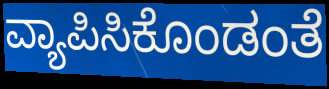
ವ್ಯಾಪಿಸಿಕೊಂಡಂತೆ